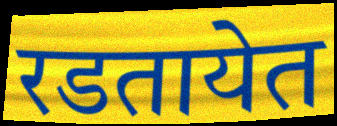
रडतायेत